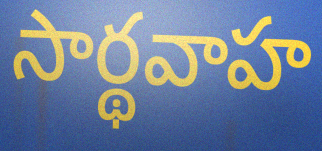
సార్థవాహ